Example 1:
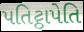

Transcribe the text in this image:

પતિટ્ઠાપેતિ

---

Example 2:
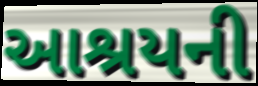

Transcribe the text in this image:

આશ્રયની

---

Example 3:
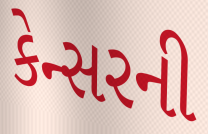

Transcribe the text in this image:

કેન્સરની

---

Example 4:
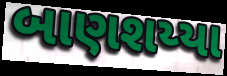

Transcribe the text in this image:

બાણશય્યા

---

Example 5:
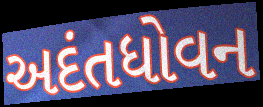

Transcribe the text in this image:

અદંતધોવન